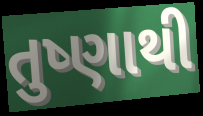
તુષ્ણાથી